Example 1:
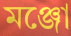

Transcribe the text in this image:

মঞ্জো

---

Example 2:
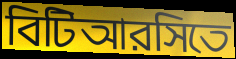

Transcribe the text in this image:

বিটিআরসিতে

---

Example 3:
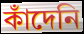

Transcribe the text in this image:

কাঁদেনি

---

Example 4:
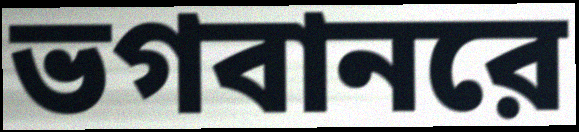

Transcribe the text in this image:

ভগবানরে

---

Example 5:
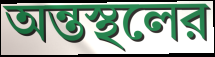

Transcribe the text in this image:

অন্তস্থলের